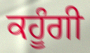
ਕਹੂੰਗੀ